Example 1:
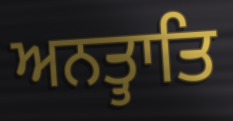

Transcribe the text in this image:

ਅਨਤ੍ਤਾਤਿ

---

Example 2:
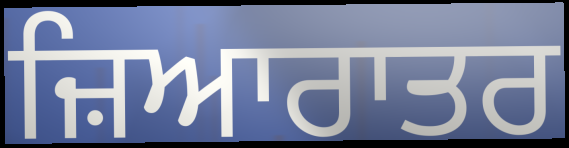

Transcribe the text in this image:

ਜ਼ਿਆਰਾਤਰ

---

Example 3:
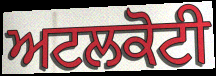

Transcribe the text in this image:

ਅਟਲਕੋਟੀ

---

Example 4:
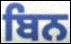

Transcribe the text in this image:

ਬਿਨ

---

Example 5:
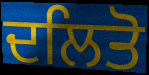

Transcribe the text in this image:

ਦਲਿਤੋ